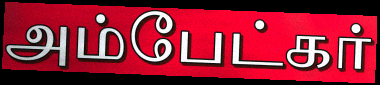
அம்பேட்கர்